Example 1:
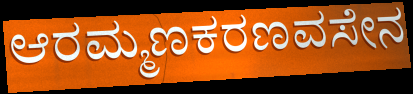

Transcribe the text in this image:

ಆರಮ್ಮಣಕರಣವಸೇನ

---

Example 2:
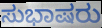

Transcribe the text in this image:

ಸುಭಾಷರು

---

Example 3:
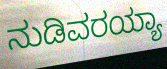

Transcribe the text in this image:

ನುಡಿವರಯ್ಯಾ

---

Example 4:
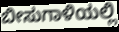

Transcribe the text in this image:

ಬೀಸುಗಾಳಿಯಲ್ಲಿ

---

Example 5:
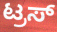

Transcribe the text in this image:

ಟ್ರಸ್